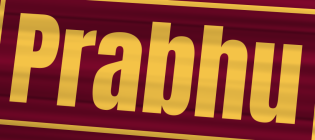
Prabhu